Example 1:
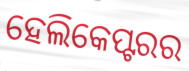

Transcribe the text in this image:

ହେଲିକେପ୍ଟରର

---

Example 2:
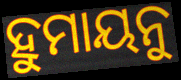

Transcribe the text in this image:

ହୁମାୟନୁ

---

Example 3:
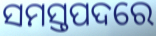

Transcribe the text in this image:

ସମସ୍ତପଦରେ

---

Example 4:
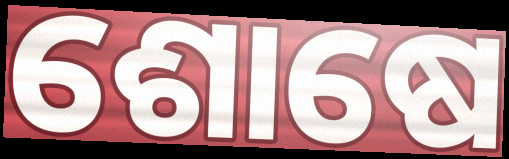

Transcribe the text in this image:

ଶୋଷେ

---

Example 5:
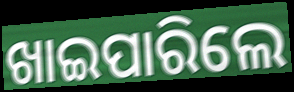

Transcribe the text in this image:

ଖାଇପାରିଲେ